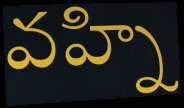
వహ్ని